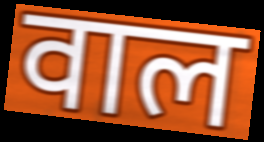
वाल